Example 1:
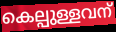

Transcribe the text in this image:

കെല്പുള്ളവന്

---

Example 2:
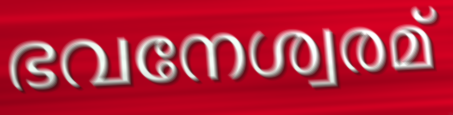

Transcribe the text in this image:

ഭവനേശ്വരമ്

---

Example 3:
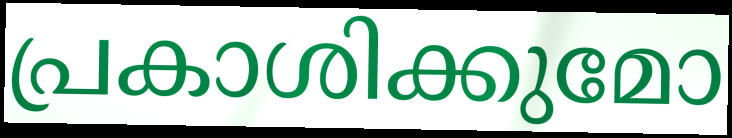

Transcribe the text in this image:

പ്രകാശിക്കുമോ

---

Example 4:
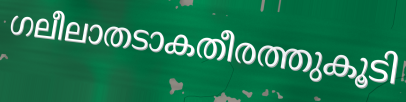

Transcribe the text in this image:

ഗലീലാതടാകതീരത്തുകൂടി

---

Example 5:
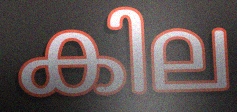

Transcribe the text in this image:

കില